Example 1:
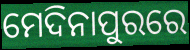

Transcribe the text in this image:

ମେଦିନାପୁରରେ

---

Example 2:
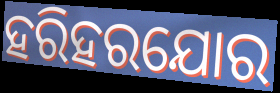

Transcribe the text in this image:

ହରିହରଯୋର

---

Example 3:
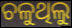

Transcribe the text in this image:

ଚଳୁଥିଲୁ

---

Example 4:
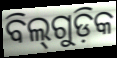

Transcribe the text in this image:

ବିଲ୍‌ଗୁଡ଼ିକ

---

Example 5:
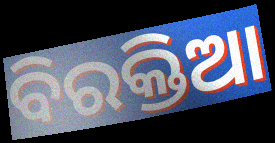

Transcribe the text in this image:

ବିରକ୍ତିଆ